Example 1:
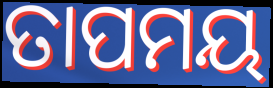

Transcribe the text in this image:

ତାପମୟ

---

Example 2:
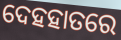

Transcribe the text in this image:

ଦେହହାତରେ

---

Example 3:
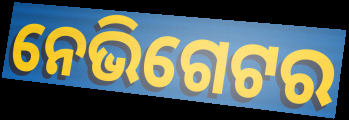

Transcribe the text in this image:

ନେଭିଗେଟର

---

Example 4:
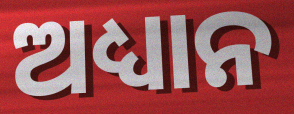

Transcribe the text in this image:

ଅଧ୍ୟାନ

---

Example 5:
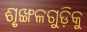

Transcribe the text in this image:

ଶୃଙ୍ଖଳଗୁଡ଼ିକୁ